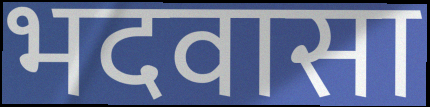
भदवासा